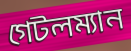
গেটলম্যান